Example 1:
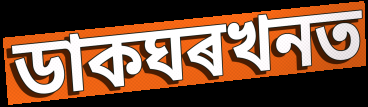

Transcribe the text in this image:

ডাকঘৰখনত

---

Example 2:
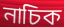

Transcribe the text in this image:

নাচিক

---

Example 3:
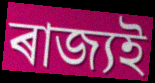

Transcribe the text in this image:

ৰাজ্যই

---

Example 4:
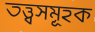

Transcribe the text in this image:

তত্ত্বসমূহক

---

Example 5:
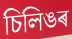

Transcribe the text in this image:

চিলিঙৰ